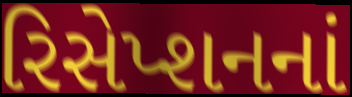
રિસેપ્શનનાં